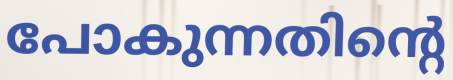
പോകുന്നതിന്റെ